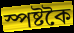
স্পষ্টকৈ